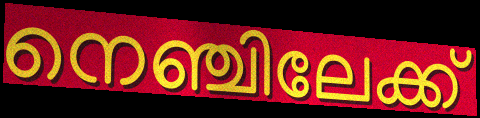
നെഞ്ചിലേക്ക്